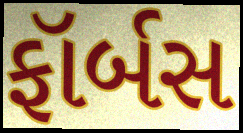
ફૉર્બસ